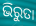
ଭିରୁତା